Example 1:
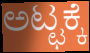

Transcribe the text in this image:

ಅಟ್ಟಕ್ಕೆ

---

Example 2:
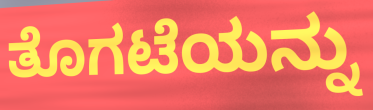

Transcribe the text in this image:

ತೊಗಟೆಯನ್ನು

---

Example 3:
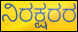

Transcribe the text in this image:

ನಿರಕ್ಷರರ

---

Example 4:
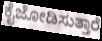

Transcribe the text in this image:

ಕೈಜೋಡಿಸುತ್ತಾರೆ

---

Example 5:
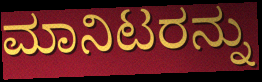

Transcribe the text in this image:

ಮಾನಿಟರನ್ನು